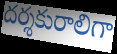
దర్శకురాలిగా